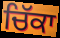
ਚਿੱਕਾ